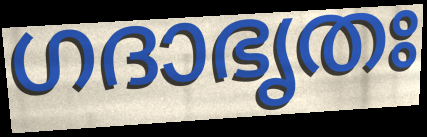
ഗദാഭൃതഃ